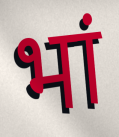
भां